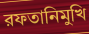
রফতানিমুখি